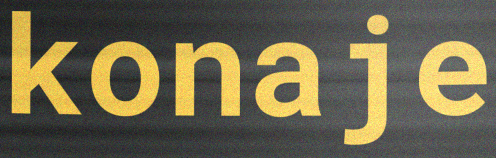
konaje